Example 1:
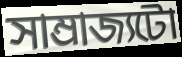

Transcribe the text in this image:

সাম্ৰাজ্যটো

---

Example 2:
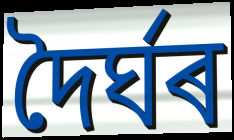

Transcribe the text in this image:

দৈৰ্ঘৰ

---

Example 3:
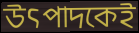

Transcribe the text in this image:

উৎপাদকেই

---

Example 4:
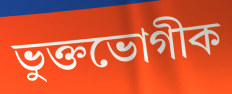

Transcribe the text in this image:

ভুক্তভোগীক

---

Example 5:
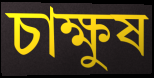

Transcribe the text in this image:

চাক্ষুষ